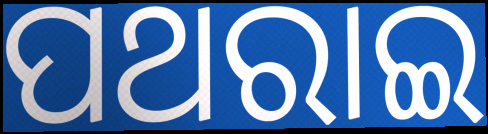
ପଥରାଇ